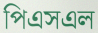
পিএসএল